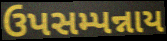
ઉપસમ્પન્નાય